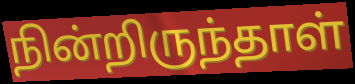
நின்றிருந்தாள்